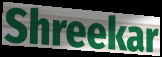
Shreekar